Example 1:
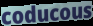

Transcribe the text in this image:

coducous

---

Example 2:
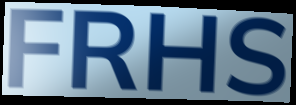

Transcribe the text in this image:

FRHS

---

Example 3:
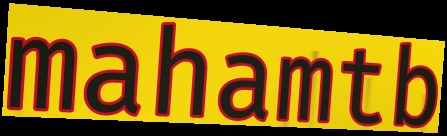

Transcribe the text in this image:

mahamtb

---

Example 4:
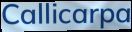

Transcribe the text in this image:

Callicarpa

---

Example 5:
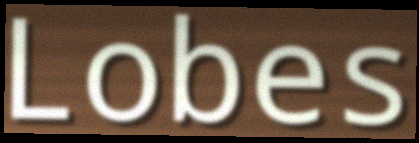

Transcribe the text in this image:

Lobes